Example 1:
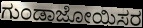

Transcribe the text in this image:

ಗುಂಡಾಜೋಯಿಸರ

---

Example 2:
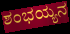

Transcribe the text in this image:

ಶಂಭಯ್ಯನ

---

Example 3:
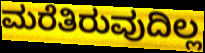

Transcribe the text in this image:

ಮರೆತಿರುವುದಿಲ್ಲ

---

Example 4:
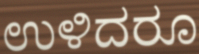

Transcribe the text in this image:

ಉಳಿದರೂ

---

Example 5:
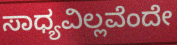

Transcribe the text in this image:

ಸಾಧ್ಯವಿಲ್ಲವೆಂದೇ